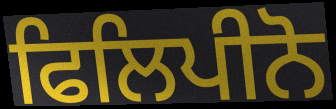
ਫਿਲਿਪੀਨੋ